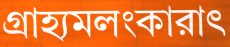
গ্রাহ্যমলংকারাৎ